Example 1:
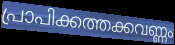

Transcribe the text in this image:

പ്രാപിക്കത്തക്കവണ്ണം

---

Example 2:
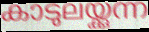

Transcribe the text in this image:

കാടുലയ്ക്കുന്ന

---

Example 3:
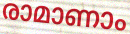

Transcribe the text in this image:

രാമാണാം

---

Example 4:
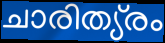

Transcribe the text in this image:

ചാരിത്യ്രം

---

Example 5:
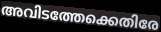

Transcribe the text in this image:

അവിടത്തേക്കെതിരേ